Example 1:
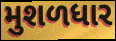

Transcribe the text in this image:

મુશળધાર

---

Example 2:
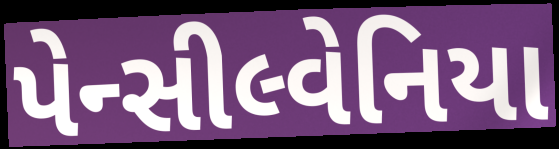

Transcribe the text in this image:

પેન્સીલ્વેનિયા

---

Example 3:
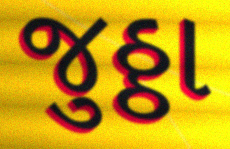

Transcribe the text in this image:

જુઠ્ઠા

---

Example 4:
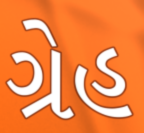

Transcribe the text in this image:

ગ્રેહ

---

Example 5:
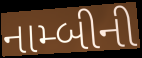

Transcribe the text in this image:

નામ્બીની